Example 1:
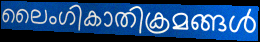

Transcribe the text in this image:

ലൈംഗികാതിക്രമങ്ങൾ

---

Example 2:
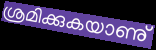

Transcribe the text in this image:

ശ്രമിക്കുകയാണു്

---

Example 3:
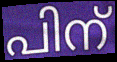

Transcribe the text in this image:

പിന്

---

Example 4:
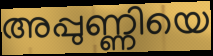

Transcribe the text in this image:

അപ്പുണ്ണിയെ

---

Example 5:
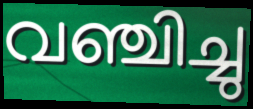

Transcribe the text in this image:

വഞ്ചിച്ചു